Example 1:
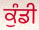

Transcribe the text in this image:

ਕੁੰਡੀ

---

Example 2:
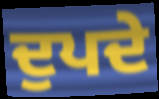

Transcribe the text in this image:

ਦੁਪਦੇ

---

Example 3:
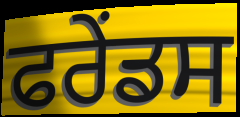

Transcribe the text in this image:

ਫਰੇਂਡਸ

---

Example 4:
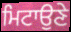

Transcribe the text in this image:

ਮਿਟਾਉਣੇ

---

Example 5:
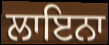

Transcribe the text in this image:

ਲਾਇਨਾ